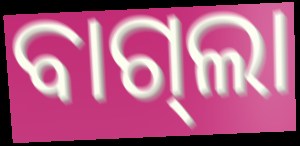
ବାଗ୍‌ଲା